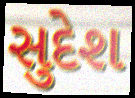
સુદેશ